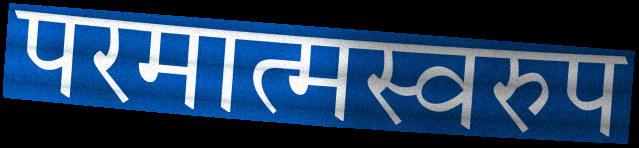
परमात्मस्वरुप